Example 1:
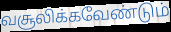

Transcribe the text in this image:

வசூலிக்கவேண்டும்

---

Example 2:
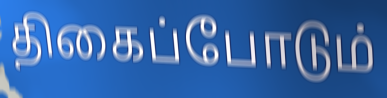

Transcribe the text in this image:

திகைப்போடும்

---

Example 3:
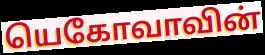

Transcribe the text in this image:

யெகோவாவின்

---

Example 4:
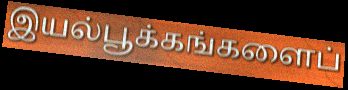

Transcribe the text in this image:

இயல்பூக்கங்களைப்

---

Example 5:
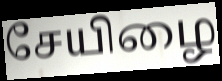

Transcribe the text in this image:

சேயிழை